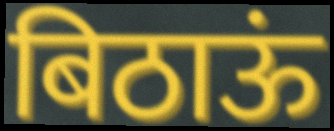
बिठाऊं